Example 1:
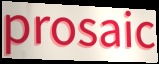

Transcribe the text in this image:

prosaic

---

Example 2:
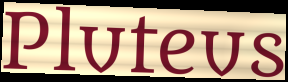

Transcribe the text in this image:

Pluteus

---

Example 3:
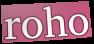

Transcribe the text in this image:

roho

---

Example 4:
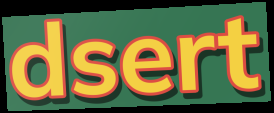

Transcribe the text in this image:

dsert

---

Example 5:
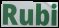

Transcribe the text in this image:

Rubi